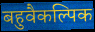
बहुवैकल्पिक